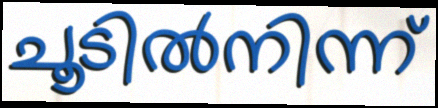
ചൂടിൽനിന്ന്